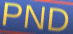
PND